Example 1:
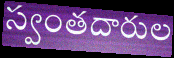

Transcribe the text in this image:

స్వంతదారుల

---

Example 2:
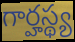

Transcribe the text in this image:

గార్హస్థ్య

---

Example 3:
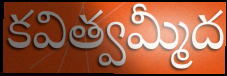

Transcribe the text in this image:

కవిత్వమ్మీద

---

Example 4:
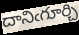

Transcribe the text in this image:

దానిఁగూర్చి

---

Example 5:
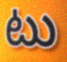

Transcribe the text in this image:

టు